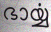
ഭാൎയ്യ